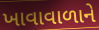
ખાવાવાળાને